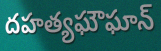
దహత్యఘౌఘాన్